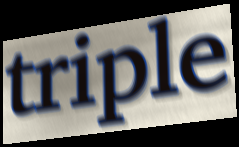
triple